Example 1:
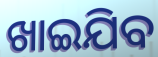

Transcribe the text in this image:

ଖାଇଯିବ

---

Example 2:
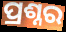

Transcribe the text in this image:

ପ୍ରଶ୍ନର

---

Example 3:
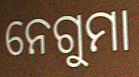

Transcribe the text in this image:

ନେଗୁମା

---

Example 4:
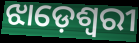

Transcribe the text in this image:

ଝାଡ଼େଶ୍ୱରୀ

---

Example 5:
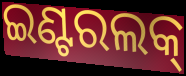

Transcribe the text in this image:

ଇଣ୍ଟରଲକ୍